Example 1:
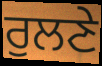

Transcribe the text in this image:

ਰੁਲਣੇ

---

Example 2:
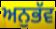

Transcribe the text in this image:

ਅਨੁਭੱਵ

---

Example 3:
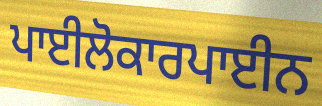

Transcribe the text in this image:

ਪਾਈਲੋਕਾਰਪਾਈਨ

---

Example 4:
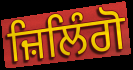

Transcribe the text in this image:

ਜ਼ਿਲਿੰਗੋ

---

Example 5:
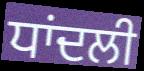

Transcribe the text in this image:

ਧਾਂਦਲੀ